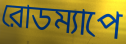
রোডম্যাপে